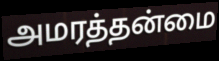
அமரத்தன்மை